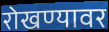
रोखण्यावर